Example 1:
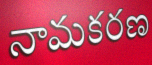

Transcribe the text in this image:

నామకరణ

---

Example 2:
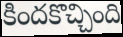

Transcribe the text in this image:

కిందకొచ్చింది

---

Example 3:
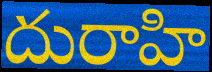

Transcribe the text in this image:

దురాహి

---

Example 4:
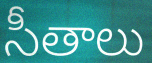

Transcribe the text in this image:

సీతాలు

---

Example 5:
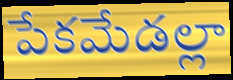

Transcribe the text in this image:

పేకమేడల్లా